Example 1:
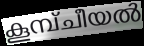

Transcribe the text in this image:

കൂമ്പ്ചീയൽ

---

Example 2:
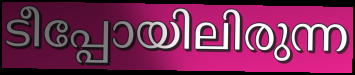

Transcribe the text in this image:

ടീപ്പോയിലിരുന്ന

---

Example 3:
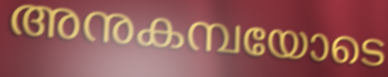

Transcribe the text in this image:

അനുകമ്പയോടെ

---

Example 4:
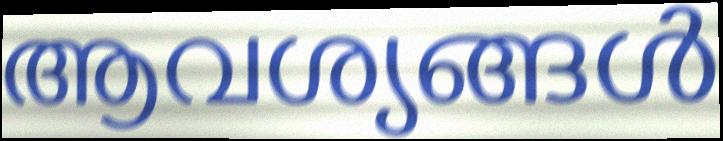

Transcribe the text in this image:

ആവശ്യങ്ങൾ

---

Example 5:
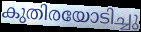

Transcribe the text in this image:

കുതിരയോടിച്ചു